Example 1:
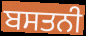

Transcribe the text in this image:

ਬਸਤਨੀ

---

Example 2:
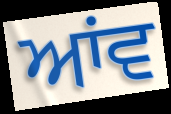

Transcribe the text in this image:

ਆਂਵ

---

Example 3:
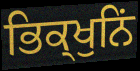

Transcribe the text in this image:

ਭਿਕ੍ਖੁਨਿਂ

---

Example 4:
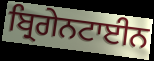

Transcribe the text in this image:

ਬ੍ਰਿਗੇਨਟਾਈਨ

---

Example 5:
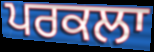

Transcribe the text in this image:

ਪਰਕਲਾ